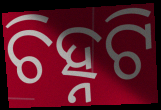
ଚିହ୍ନଟି